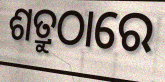
ଶତ୍ରୁଠାରେ